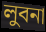
লুবনা